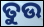
ତୁଉ